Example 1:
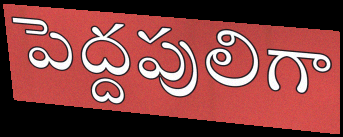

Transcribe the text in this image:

పెద్దపులిగా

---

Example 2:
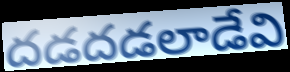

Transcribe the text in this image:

దడదడలాడేవి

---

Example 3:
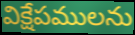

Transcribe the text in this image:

విక్షేపములను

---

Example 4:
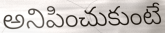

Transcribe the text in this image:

అనిపించుకుంటే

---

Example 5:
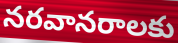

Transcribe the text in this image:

నరవానరాలకు